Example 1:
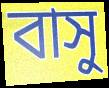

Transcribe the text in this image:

বাসু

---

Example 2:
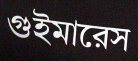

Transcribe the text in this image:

গুইমারেস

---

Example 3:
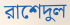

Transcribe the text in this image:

রাশেদুল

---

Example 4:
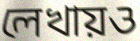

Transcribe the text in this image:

লেখায়ও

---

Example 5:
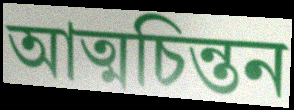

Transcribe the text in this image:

আত্মচিন্তন